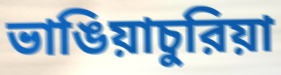
ভাঙিয়াচুরিয়া